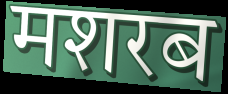
मशरब